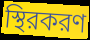
স্থিরকরণ